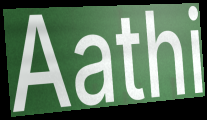
Aathi